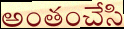
అంతంచేసి